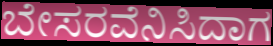
ಬೇಸರವೆನಿಸಿದಾಗ